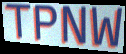
TPNW